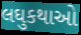
લઘુકથાઓ